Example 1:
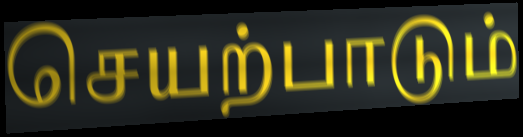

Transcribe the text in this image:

செயற்பாடும்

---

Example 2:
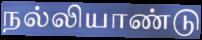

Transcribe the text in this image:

நல்லியாண்டு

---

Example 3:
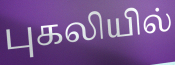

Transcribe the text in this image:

புகலியில்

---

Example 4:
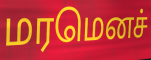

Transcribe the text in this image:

மரமெனச்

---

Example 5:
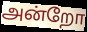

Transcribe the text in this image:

அன்றோ